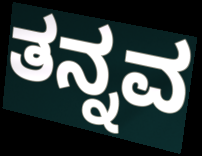
ತನ್ನವ